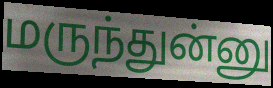
மருந்துன்னு